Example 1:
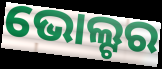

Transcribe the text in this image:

ଭୋଲ୍ଟର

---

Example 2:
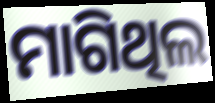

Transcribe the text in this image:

ମାଗିଥିଲ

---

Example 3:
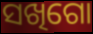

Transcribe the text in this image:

ସଖିଗୋ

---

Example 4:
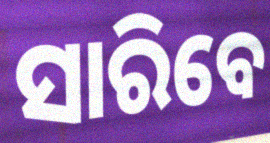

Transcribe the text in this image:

ସାରିବେ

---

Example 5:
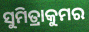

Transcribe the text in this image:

ସୁମିତ୍ରାକୁମର